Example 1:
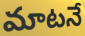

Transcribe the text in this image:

మాటనే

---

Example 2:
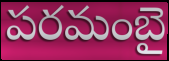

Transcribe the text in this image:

పరమంబై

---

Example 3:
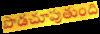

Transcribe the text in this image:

పొడచూపుతుంది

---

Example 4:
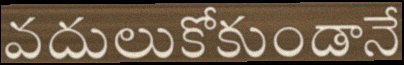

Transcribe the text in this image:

వదులుకోకుండానే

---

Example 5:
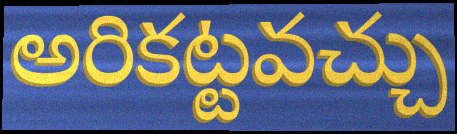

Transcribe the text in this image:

అరికట్టవచ్చు